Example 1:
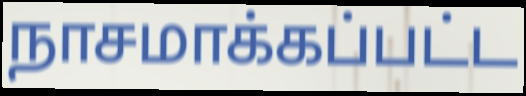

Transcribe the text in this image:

நாசமாக்கப்பட்ட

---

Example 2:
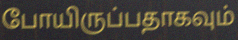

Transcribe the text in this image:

போயிருப்பதாகவும்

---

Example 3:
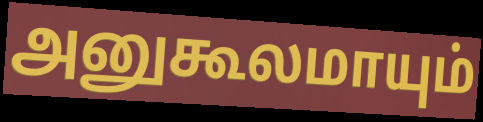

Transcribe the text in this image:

அனுகூலமாயும்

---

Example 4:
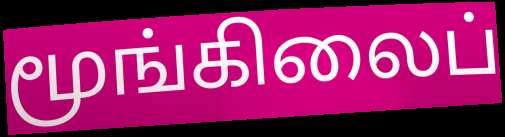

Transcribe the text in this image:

மூங்கிலைப்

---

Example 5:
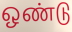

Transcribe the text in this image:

ஒண்டு